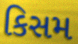
કિસમ